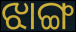
ଝାଙ୍ଗ